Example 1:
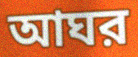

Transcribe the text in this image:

আঘর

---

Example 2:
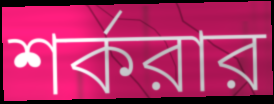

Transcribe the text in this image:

শর্করার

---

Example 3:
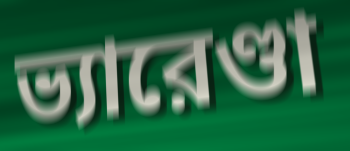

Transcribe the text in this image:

ভ্যারেণ্ডা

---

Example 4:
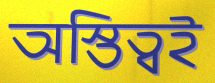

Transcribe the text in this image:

অস্তিত্বই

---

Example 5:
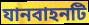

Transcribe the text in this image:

যানবাহনটি